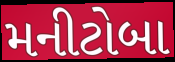
મનીટોબા